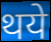
थये